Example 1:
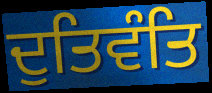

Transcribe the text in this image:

ਦੁਤਿਵੰਤਿ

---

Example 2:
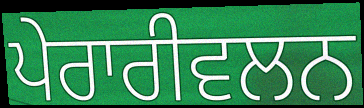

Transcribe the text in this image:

ਪੇਰਾਰੀਵਲਨ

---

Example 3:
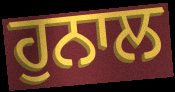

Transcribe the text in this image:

ਹੁਨਾਲ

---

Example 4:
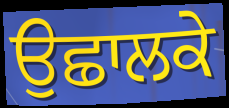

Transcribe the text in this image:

ਉਛਾਲਕੇ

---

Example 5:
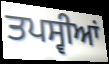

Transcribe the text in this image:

ਤਪਸ੍ਵੀਆਂ